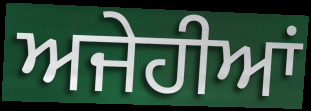
ਅਜੇਹੀਆਂ